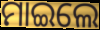
ମାଇଲେ